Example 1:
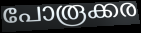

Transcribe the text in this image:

പോരൂക്കര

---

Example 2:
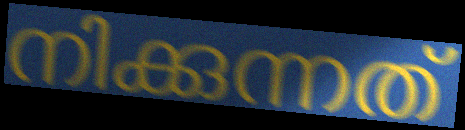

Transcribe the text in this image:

നിക്കുന്നത്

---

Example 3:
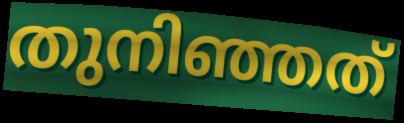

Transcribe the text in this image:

തുനിഞ്ഞത്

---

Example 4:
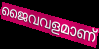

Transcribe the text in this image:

ജൈവവളമാണ്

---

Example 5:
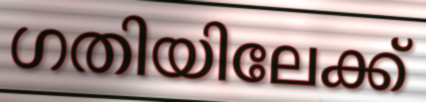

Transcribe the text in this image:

ഗതിയിലേക്ക്